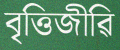
বৃত্তিজীৱি